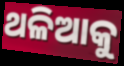
ଥଳିଆକୁ